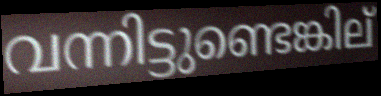
വന്നിട്ടുണ്ടെങ്കില്